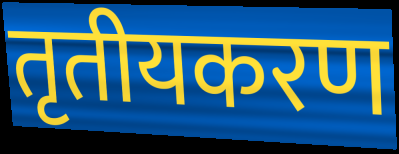
तृतीयकरण